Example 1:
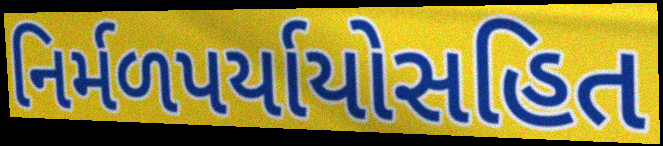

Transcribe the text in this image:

નિર્મળપર્યાયોસહિત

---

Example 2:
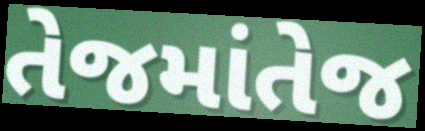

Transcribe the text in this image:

તેજમાંતેજ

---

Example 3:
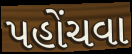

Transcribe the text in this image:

પહોંચવા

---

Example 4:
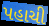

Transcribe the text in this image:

પહાચી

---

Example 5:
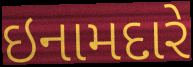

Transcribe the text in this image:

ઇનામદારે